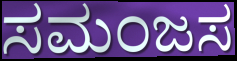
ಸಮಂಜಸ